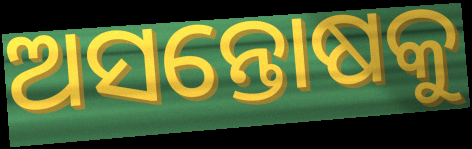
ଅସନ୍ତୋଷକୁ